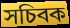
সচিবক